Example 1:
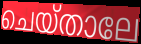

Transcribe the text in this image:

ചെയ്താലേ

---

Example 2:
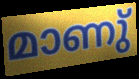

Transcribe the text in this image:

മാണു്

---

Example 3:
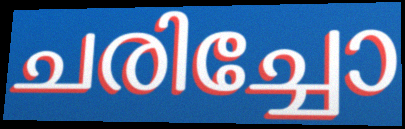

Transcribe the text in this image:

ചരിച്ചോ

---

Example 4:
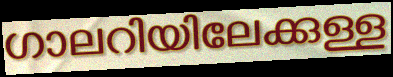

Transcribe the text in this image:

ഗാലറിയിലേക്കുള്ള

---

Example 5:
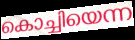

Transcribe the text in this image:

കൊച്ചിയെന്ന